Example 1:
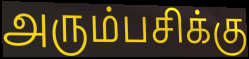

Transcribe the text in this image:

அரும்பசிக்கு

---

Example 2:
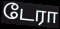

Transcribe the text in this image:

டேரா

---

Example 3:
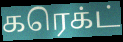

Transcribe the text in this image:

கரெக்ட்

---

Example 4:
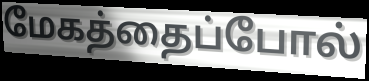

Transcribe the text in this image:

மேகத்தைப்போல்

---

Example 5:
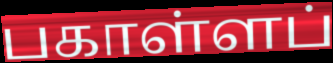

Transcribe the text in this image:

பகாள்ளப்